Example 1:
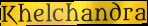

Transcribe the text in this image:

Khelchandra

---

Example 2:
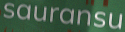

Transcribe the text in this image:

sauransu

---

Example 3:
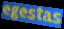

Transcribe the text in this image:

egestas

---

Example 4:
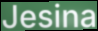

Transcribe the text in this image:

Jesina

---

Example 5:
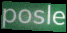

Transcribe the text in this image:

posle